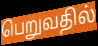
பெறுவதில்